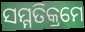
ସମ୍ମତିକ୍ରମେ